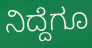
ನಿದ್ದೆಗೂ